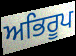
ਅਭਿਰੂਪ